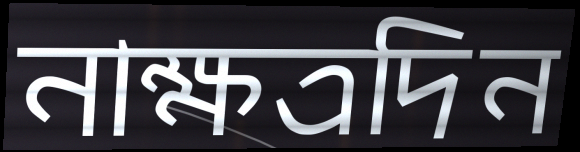
নাক্ষত্রদিন